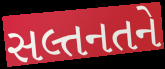
સલ્તનતને